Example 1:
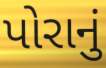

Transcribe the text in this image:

પોરાનું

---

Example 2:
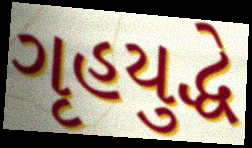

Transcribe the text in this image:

ગૃહયુદ્ધે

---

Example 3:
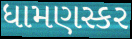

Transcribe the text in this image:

ધામણસ્કર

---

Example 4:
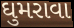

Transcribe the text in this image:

ઘુમરાવા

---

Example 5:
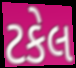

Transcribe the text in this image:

ટકેલ